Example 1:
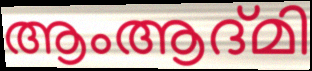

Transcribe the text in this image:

ആംആദ്മി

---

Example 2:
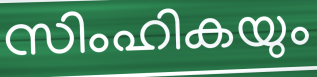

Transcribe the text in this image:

സിംഹികയും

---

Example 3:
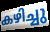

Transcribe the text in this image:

കഴിച്ചു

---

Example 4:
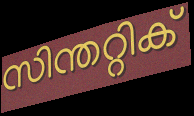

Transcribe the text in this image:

സിന്തറ്റിക്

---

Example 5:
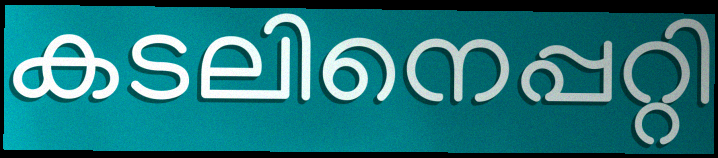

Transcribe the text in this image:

കടലിനെപ്പറ്റി